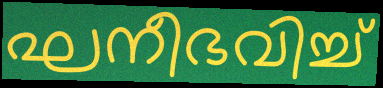
ഘനീഭവിച്ച്